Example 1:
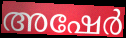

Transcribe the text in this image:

അഷേർ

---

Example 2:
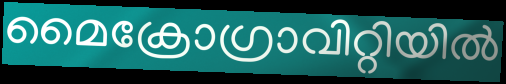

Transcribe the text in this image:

മൈക്രോഗ്രാവിറ്റിയിൽ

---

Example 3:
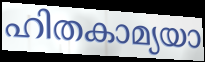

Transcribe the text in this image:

ഹിതകാമ്യയാ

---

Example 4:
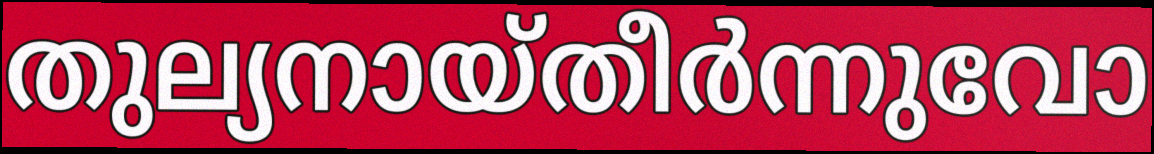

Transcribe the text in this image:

തുല്യനായ്തീർന്നുവോ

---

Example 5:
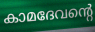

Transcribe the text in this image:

കാമദേവന്റെ